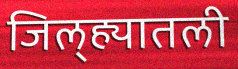
जिल्ह्यातली